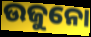
ଉଜୁନୋ